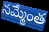
నమ్మేంత